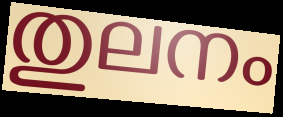
തുലനം